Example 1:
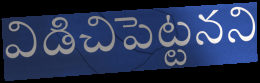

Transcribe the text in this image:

విడిచిపెట్టనని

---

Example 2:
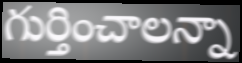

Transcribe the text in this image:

గుర్తించాలన్నా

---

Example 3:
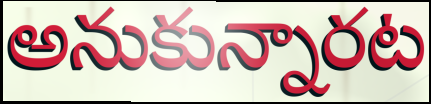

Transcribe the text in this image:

అనుకున్నారట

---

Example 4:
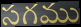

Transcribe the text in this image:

సగము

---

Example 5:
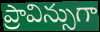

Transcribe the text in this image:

ప్రావిన్సుగా